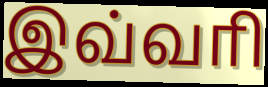
இவ்வரி